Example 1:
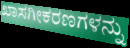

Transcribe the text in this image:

ಖಾಸಗೀಕರಣಗಳನ್ನು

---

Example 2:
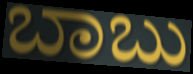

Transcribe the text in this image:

ಬಾಬು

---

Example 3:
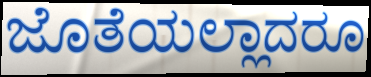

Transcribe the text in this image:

ಜೊತೆಯಲ್ಲಾದರೂ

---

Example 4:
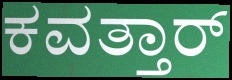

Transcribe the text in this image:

ಕವತ್ತಾರ್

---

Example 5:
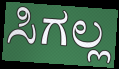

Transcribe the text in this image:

ಸಿಗಲ್ಲ